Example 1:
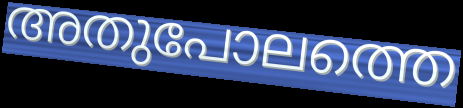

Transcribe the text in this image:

അതുപോലത്തെ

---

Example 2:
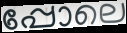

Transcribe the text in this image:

പ്പോലെ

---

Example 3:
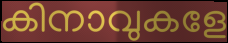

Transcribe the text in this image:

കിനാവുകളേ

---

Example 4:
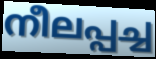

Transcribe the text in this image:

നീലപ്പച്ച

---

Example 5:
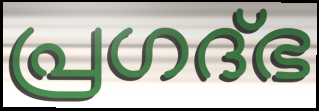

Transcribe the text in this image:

പ്രഗദ്ഭ